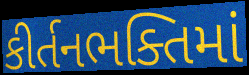
કીર્તનભક્તિમાં